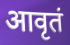
आवृतं